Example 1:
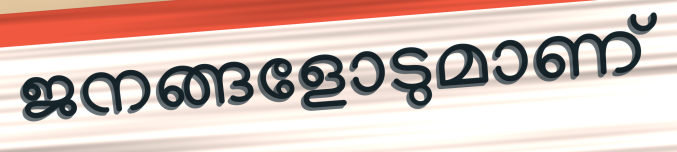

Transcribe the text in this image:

ജനങ്ങളോടുമാണ്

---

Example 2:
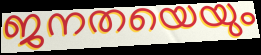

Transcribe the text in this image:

ജനതയെയും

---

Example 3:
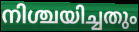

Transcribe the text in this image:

നിശ്ചയിച്ചതും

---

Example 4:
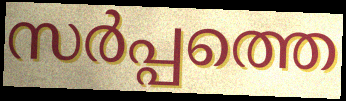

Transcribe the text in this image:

സർപ്പത്തെ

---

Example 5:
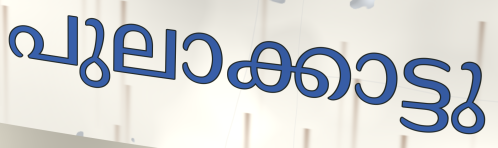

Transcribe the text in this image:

പുലാക്കാട്ടു